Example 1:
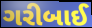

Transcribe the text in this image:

ગરીબાઈ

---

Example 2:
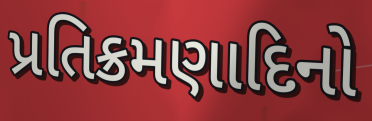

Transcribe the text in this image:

પ્રતિક્રમણાદિનો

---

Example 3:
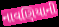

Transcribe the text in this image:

નાવણિયાની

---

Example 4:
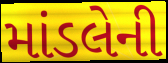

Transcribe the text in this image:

માંડલેની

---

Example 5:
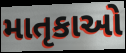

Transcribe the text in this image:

માતૃકાઓ